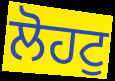
ਲੋਹਟੁ